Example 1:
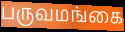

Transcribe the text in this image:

பருவமங்கை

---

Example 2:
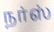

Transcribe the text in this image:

நர்ஸ்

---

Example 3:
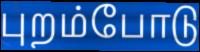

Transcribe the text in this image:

புறம்போடு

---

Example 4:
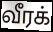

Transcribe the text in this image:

வீரக்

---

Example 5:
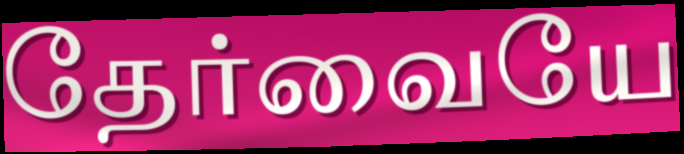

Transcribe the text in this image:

தேர்வையே